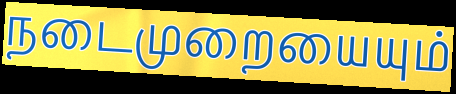
நடைமுறையையும்